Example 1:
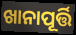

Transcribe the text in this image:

ଖାନାପୂର୍ତ୍ତି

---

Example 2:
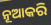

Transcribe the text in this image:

ନୂଆକରି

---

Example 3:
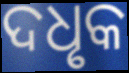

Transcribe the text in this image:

ଦଧୃକ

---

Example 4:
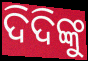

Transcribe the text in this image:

ଦିଦିଙ୍କୁ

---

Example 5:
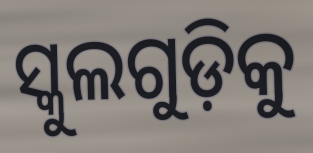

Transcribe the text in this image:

ସ୍କୁଲଗୁଡ଼ିକୁ